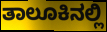
ತಾಲೂಕಿನಲ್ಲಿ